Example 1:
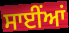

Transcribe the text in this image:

ਸਾਈਂਆਂ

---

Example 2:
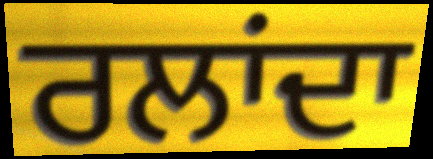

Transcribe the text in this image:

ਰਲਾਂਦਾ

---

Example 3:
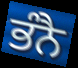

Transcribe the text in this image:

ਭੰਨੈ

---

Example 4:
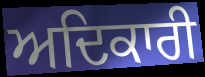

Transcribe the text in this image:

ਅਦਿਕਾਰੀ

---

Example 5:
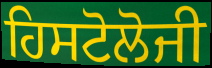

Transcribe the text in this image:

ਹਿਸਟੋਲੋਜੀ